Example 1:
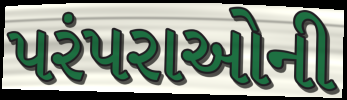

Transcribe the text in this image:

પરંપરાઓની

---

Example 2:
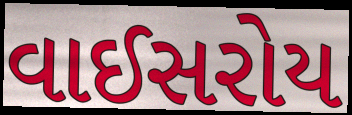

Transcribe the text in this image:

વાઈસરોય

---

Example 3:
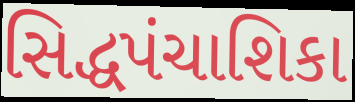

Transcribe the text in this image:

સિદ્ધપંચાશિકા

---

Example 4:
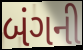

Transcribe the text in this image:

બંગની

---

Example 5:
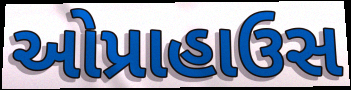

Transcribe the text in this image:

ઓપ્રાહાઉસ